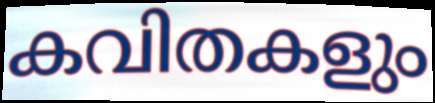
കവിതകളും